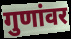
गुणांवर